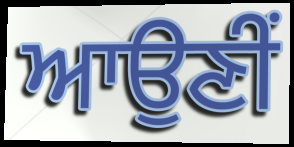
ਆਉਣੀੰ